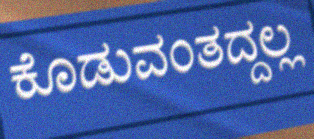
ಕೊಡುವಂತದ್ದಲ್ಲ